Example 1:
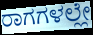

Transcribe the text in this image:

ರಾಗಗಳಲ್ಲೇ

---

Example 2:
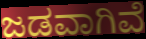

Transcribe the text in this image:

ಜಡವಾಗಿವೆ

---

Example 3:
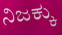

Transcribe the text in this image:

ನಿಜಕ್ಕು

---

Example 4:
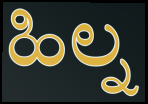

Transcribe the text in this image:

ಹಿಲ್ನ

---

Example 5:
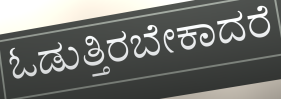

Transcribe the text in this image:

ಓಡುತ್ತಿರಬೇಕಾದರೆ